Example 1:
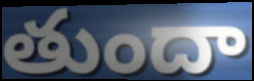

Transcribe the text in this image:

తుందా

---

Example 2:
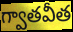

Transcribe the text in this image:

గ్వాతవీత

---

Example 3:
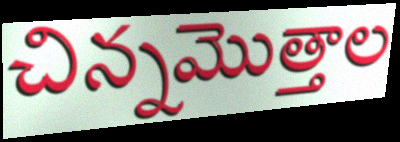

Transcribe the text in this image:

చిన్నమొత్తాల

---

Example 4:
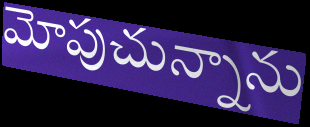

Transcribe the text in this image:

మోపుచున్నాను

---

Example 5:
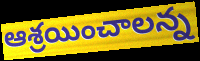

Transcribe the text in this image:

ఆశ్రయించాలన్న